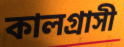
কালগ্রাসী